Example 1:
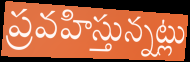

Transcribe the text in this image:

ప్రవహిస్తున్నట్లు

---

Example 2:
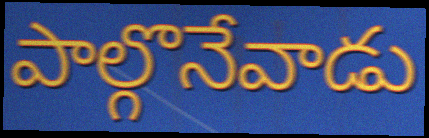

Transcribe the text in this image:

పాల్గొనేవాడు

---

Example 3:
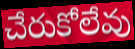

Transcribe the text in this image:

చేరుకోలేవు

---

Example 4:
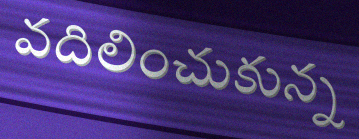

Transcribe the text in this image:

వదిలించుకున్న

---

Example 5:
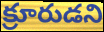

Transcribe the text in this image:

క్రూరుడని